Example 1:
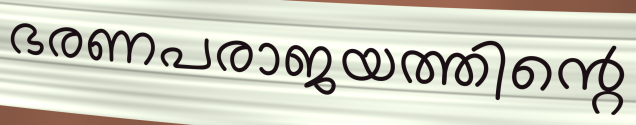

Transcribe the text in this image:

ഭരണപരാജയത്തിന്റെ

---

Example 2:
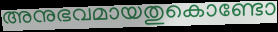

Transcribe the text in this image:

അനുഭവമായതുകൊണ്ടോ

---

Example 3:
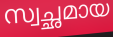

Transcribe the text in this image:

സ്വച്ഛമായ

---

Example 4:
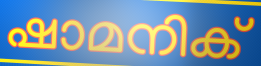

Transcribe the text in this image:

ഷാമനിക്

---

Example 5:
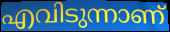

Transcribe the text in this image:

എവിടുന്നാണ്